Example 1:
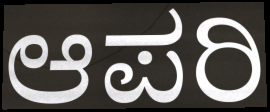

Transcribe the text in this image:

ಆಪರಿ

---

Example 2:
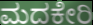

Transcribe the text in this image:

ಮದಕೇರಿ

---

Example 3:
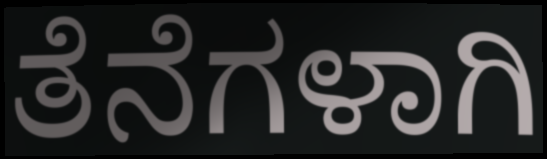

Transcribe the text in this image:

ತೆನೆಗಳಾಗಿ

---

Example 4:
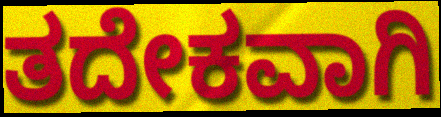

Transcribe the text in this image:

ತದೇಕವಾಗಿ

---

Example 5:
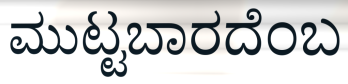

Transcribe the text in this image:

ಮುಟ್ಟಬಾರದೆಂಬ